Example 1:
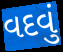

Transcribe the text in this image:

વદવું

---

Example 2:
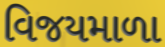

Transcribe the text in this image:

વિજયમાળા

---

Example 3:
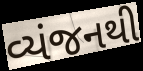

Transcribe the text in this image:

વ્યંજનથી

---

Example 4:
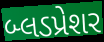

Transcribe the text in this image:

બ્લડપ્રેશર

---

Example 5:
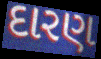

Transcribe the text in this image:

દારણ